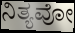
ನಿತ್ಯವೋ